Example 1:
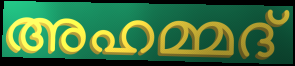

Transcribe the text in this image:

അഹമ്മദ്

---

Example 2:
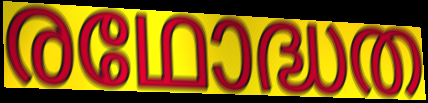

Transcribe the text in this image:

രഥോദ്ധത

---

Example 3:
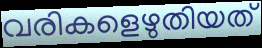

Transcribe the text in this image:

വരികളെഴുതിയത്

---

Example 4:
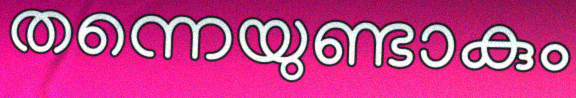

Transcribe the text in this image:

തന്നെയുണ്ടാകും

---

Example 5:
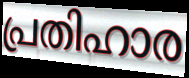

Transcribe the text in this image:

പ്രതിഹാര